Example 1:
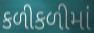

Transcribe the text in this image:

કળીકળીમાં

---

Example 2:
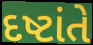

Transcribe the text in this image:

દષ્ટાંતે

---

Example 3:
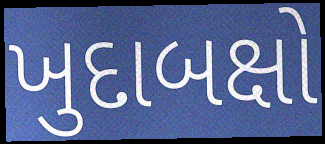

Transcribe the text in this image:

ખુદાબક્ષો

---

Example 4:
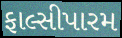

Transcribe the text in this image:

ફાલ્સીપારમ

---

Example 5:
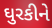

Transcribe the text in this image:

ઘુરકીને